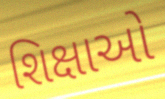
શિક્ષાઓ